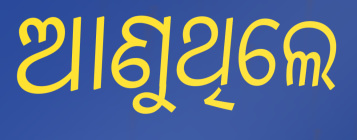
ଆଣୁଥିଲେ